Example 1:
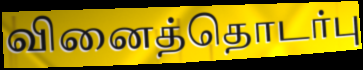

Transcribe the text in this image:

வினைத்தொடர்பு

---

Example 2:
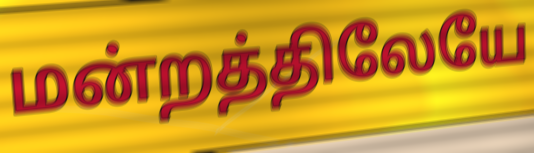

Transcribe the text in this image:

மன்றத்திலேயே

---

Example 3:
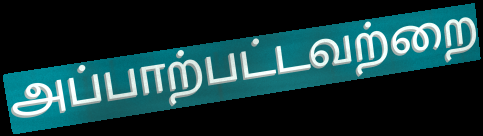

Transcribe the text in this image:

அப்பாற்பட்டவற்றை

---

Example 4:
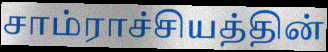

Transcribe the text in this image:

சாம்ராச்சியத்தின்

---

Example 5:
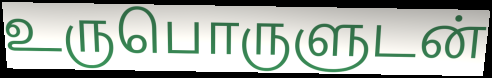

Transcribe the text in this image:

உருபொருளுடன்